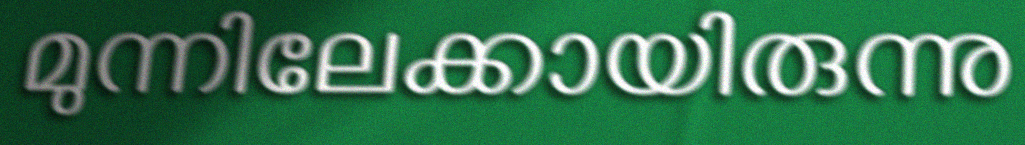
മുന്നിലേക്കായിരുന്നു